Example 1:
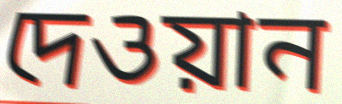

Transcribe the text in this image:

দেওয়ান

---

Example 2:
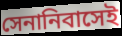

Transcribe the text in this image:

সেনানিবাসেই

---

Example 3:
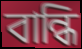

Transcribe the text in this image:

বান্ধি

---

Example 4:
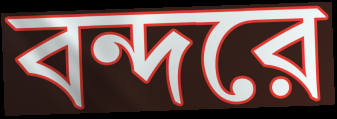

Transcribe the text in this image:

বন্দরে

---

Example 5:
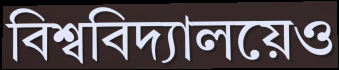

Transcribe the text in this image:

বিশ্ববিদ্যালয়েও